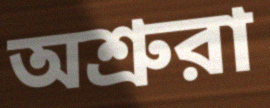
অশ্রুরা